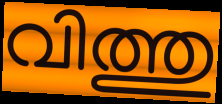
വിത്തു